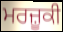
ਮਰਜ਼ੂਕੀ